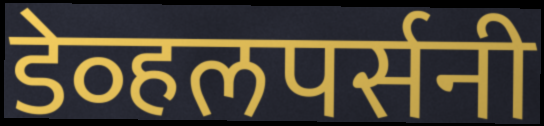
डेव्हलपर्सनी